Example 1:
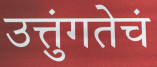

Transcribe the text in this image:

उत्तुंगतेचं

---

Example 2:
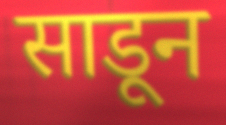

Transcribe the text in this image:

साडून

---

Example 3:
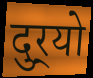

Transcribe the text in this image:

दुर्यो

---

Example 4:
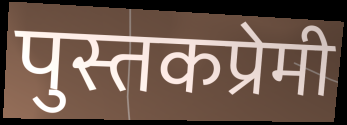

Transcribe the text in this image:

पुस्तकप्रेमी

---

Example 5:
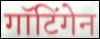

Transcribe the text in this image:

गॉटिंगेन